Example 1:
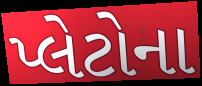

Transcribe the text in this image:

પ્લેટોના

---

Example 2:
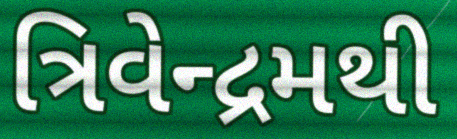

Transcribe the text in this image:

ત્રિવેન્દ્રમથી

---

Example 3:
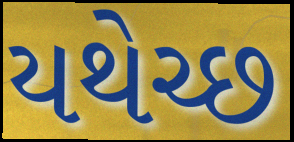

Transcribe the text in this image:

યથેચ્છ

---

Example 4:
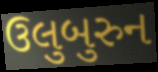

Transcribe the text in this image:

ઉલુબુરુન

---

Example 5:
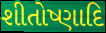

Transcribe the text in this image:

શીતોષ્ણાદિ